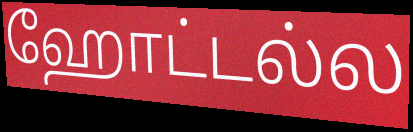
ஹோட்டல்ல